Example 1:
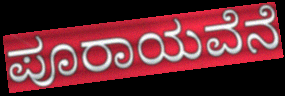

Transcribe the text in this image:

ಪೂರಾಯವೆನೆ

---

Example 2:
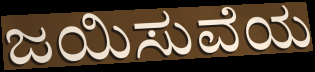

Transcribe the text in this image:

ಜಯಿಸುವೆಯ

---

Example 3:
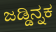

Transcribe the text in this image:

ಜಡ್ಡಿನ್ನಕ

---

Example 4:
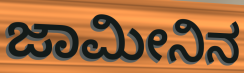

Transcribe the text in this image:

ಜಾಮೀನಿನ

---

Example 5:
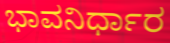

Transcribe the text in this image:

ಭಾವನಿರ್ಧಾರ